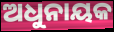
ଅଧୁନାୟକ